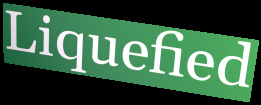
Liquefied